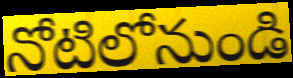
నోటిలోనుండి